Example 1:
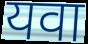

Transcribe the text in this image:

यवा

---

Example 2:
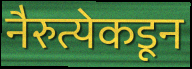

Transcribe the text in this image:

नैरुत्येकडून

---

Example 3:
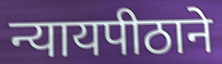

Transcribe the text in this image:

न्यायपीठाने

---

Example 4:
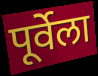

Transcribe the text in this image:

पूर्वेला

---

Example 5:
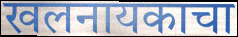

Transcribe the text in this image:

खलनायकाचा